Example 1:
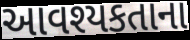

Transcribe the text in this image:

આવશ્યકતાના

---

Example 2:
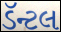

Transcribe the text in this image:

ડૅન્ટલ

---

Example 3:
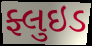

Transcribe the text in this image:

ફ્લુઇડ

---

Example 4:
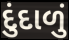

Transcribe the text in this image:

દુંદાળું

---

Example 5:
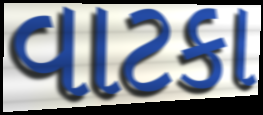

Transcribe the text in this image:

વાટકા